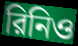
রিনিও